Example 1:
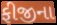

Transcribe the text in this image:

ફીજીના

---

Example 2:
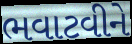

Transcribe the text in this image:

ભવાટવીને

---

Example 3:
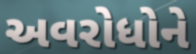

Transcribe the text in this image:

અવરોધોને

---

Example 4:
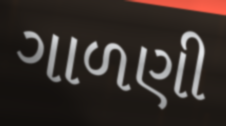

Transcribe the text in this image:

ગાળણી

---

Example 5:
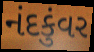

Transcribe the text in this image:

નંદકુંવર